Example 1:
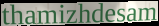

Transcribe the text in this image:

thamizhdesam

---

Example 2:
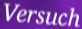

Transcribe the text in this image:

Versuch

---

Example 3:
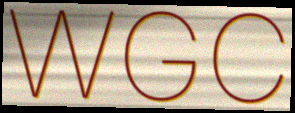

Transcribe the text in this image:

WGC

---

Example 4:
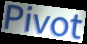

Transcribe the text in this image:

Pivot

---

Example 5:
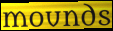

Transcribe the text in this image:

mounds